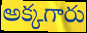
అక్కగారు